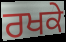
ਰਖਕੇ